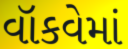
વૉકવેમાં